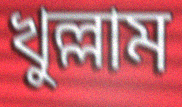
খুল্লাম